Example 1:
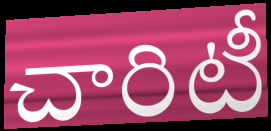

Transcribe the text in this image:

చారిటీ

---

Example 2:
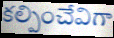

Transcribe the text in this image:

కల్పించేవిగా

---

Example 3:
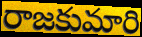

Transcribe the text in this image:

రాజకుమారి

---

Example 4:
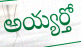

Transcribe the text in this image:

అయ్యర్తో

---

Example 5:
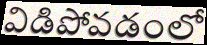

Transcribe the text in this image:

విడిపోవడంలో